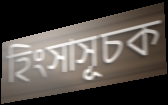
হিংসাসূচক